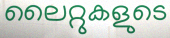
ലൈറ്റുകളുടെ